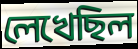
লেখেছিল